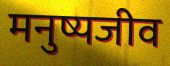
मनुष्यजीव